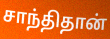
சாந்திதான்